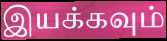
இயக்கவும்